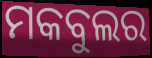
ମକବୁଲର